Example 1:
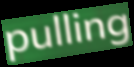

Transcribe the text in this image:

pulling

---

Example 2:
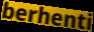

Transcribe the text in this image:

berhenti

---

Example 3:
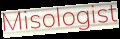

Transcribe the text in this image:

Misologist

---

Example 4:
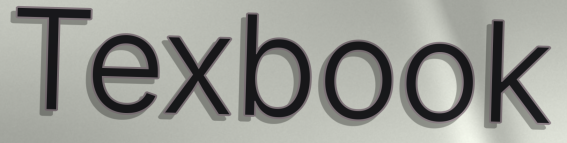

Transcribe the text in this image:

Texbook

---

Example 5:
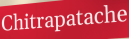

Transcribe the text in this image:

Chitrapatache